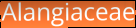
Alangiaceae